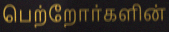
பெற்றோர்களின்